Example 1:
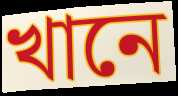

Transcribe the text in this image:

খানে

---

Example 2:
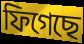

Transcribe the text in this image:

ফিগেছে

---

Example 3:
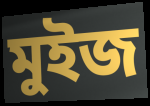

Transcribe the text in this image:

মুইজ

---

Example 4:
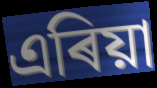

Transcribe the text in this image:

এৰিয়া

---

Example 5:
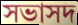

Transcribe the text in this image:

সভাসদ